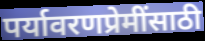
पर्यावरणप्रेमींसाठी